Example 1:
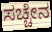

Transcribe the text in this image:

ಸಚ್ಚೇನ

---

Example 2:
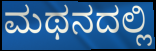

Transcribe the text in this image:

ಮಥನದಲ್ಲಿ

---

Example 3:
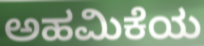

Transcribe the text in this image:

ಅಹಮಿಕೆಯ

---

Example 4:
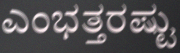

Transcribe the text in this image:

ಎಂಭತ್ತರಷ್ಟು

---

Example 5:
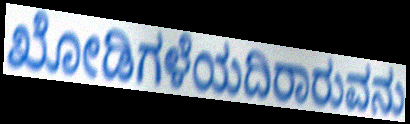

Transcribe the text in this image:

ಖೋಡಿಗಳೆಯದಿರಾರುವನು